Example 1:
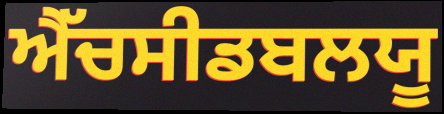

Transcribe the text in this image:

ਐੱਚਸੀਡਬਲਯੂ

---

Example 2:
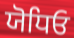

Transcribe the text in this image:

ਯੋਧਿਓ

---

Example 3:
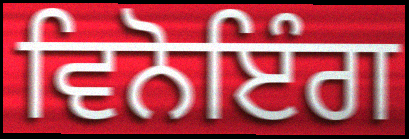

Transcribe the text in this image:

ਵਿਨੋਇੰਗ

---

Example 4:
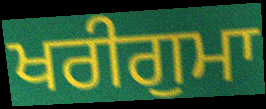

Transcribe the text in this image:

ਖਰੀਗੁਮਾ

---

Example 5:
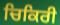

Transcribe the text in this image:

ਚਿਕਿਰੀ